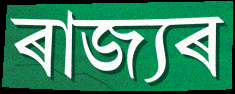
ৰাজ্যৰ